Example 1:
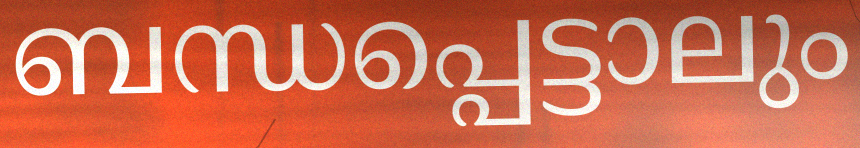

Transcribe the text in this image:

ബന്ധപ്പെട്ടാലും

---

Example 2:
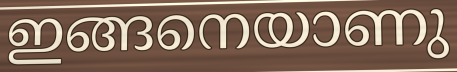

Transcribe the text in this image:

ഇങ്ങനെയാണു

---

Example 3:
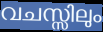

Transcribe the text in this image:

വചസ്സിലും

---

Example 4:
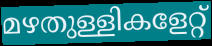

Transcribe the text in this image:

മഴതുള്ളികളേറ്റ്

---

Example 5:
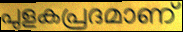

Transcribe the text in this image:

പുളകപ്രദമാണ്